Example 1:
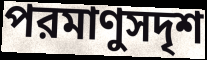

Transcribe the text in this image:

পরমাণুসদৃশ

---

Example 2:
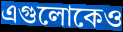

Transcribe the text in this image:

এগুলোকেও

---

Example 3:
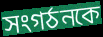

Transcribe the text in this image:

সংগঠনকে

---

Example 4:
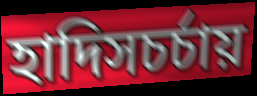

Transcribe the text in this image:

হাদিসচর্চায়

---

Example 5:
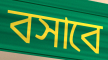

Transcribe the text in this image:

বসাবে